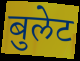
बुलेट